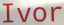
Ivor